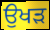
ਉਖੜ